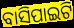
ବାସିପାଇଟି